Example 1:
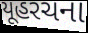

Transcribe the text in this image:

યૂહરચના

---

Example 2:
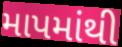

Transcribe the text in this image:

માપમાંથી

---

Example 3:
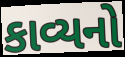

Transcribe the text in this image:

કાવ્યનો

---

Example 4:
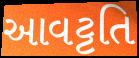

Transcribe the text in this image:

આવટ્ટતિ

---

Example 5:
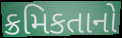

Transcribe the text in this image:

ક્રમિકતાનો